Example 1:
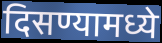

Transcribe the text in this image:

दिसण्यामध्ये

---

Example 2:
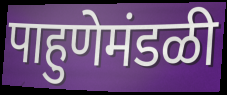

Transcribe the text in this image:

पाहुणेमंडळी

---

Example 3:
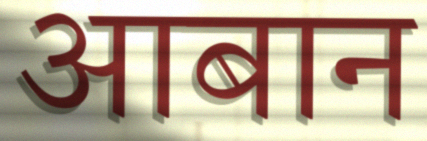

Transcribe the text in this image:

आबान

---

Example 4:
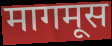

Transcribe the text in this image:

मागमूस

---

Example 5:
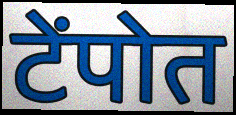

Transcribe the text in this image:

टेंपोत